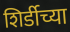
शिर्डीच्या